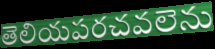
తెలియపరచవలెను